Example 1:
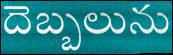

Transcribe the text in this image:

దెబ్బలును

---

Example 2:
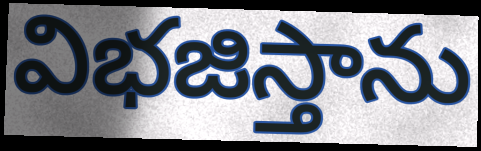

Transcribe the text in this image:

విభజిస్తాను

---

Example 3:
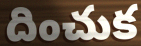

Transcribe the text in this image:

దించుక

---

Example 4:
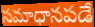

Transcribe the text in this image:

సమాధానపడే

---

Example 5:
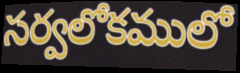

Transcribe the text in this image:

సర్వలోకములో